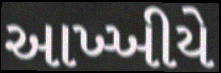
આખ્ખીયે